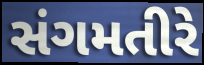
સંગમતીરે